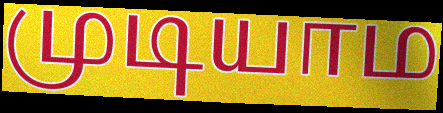
முடியாம